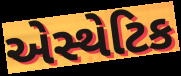
એસ્થેટિક